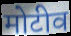
मोटीव